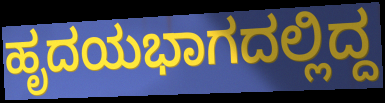
ಹೃದಯಭಾಗದಲ್ಲಿದ್ದ